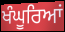
ਖੰਘੂਰਿਆਂ